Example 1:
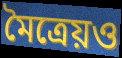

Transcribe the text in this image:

মৈত্রেয়ও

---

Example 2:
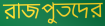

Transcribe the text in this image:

রাজপুতদের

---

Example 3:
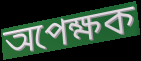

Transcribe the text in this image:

অপেক্ষক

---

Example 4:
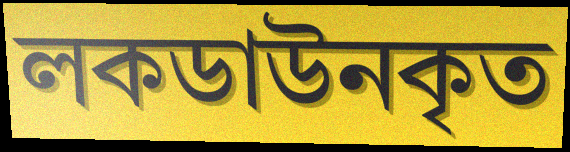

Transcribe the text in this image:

লকডাউনকৃত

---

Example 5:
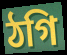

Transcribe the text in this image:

ঠগি